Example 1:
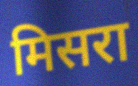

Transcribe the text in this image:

मिसरा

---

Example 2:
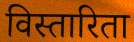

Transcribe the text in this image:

विस्तारिता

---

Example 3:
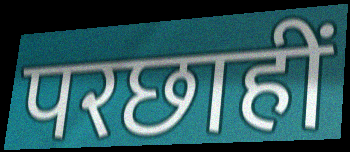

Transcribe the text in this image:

परछाहीं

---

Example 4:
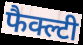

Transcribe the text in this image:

फैक्ल्टी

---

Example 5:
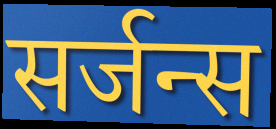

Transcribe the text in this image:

सर्जन्स